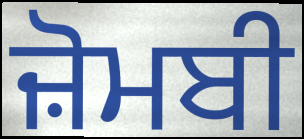
ਜ਼ੋਮਬੀ